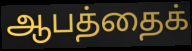
ஆபத்தைக்